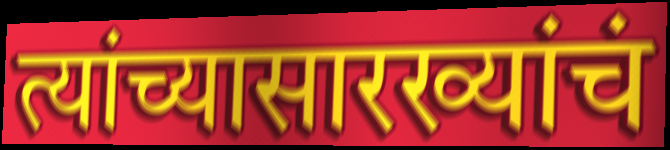
त्यांच्यासारख्यांचं